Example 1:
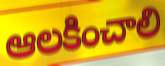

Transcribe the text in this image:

ఆలకించాలి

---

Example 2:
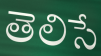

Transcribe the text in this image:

తెలిసే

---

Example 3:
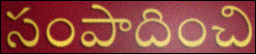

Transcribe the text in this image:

సంపాదించి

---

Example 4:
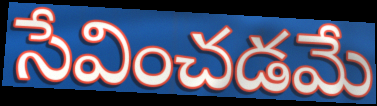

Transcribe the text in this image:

సేవించడమే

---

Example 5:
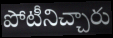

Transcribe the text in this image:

పోటీనిచ్చారు